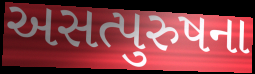
અસત્પુરુષના